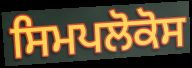
ਸਿਮਪਲੋਕੋਸ